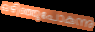
ഒഴിഞ്ഞുപോകുന്നു